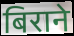
बिराने